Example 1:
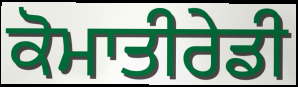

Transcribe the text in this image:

ਕੋਮਾਤੀਰੇਡੀ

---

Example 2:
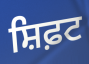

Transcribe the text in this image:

ਸ਼ਿਫ਼ਟ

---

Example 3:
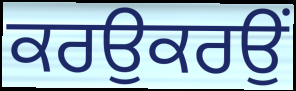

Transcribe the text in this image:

ਕਰਉਕਰਉਂ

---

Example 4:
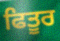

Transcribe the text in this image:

ਫਿਤੂਰ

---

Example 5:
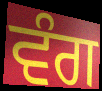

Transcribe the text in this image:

ਵੰਗ